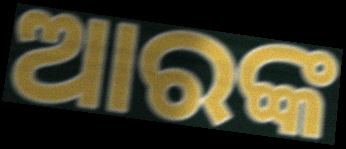
ଆରଙ୍କ